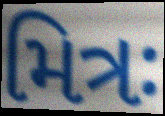
મિત્રઃ